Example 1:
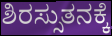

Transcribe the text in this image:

ಶಿರಸ್ಸುತನಕ್ಕೆ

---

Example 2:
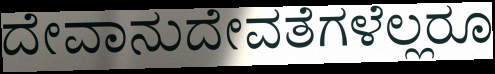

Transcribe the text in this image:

ದೇವಾನುದೇವತೆಗಳೆಲ್ಲರೂ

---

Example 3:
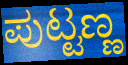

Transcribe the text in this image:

ಪುಟ್ಟಣ್ಣ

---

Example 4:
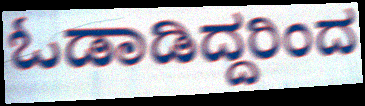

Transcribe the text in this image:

ಓಡಾಡಿದ್ದರಿಂದ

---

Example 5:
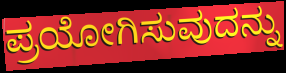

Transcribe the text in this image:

ಪ್ರಯೋಗಿಸುವುದನ್ನು